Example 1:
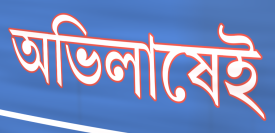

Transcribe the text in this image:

অভিলাষেই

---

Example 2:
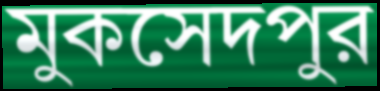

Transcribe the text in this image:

মুকসেদপুর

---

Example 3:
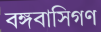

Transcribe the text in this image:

বঙ্গবাসিগণ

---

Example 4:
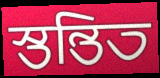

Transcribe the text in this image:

স্তন্তিত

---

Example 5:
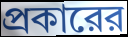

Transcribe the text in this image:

প্রকারের